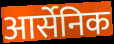
आर्सेनिक